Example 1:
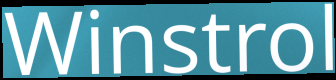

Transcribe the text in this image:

Winstrol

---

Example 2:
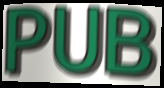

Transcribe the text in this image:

PUB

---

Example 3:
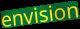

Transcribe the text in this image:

envision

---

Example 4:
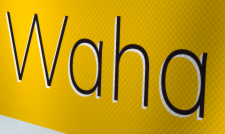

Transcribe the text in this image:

Waha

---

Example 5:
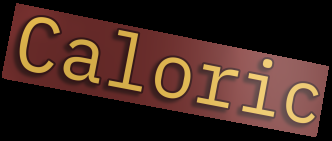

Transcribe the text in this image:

Caloric